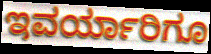
ಇವರ್ಯಾರಿಗೂ